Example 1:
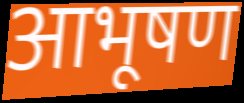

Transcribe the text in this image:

आभूषण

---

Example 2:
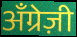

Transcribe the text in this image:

अँग्रेज़ी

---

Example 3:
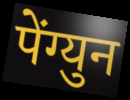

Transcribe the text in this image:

पेंग्युन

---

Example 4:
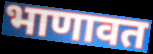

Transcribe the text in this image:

भाणावत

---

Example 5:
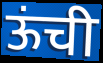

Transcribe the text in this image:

ऊंची